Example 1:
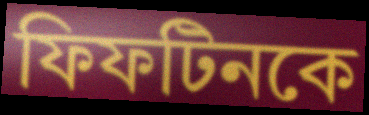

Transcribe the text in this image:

ফিফটিনকে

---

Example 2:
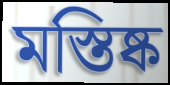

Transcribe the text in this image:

মস্তিষ্ক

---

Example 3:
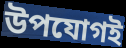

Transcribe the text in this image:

উপযোগই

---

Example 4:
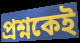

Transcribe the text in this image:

প্রশ্নকেই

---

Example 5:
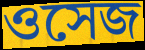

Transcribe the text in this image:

ওসেজ